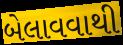
બેલાવવાથી